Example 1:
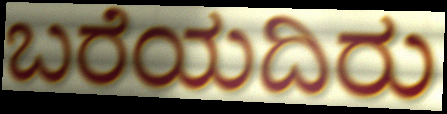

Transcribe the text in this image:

ಬರೆಯದಿರು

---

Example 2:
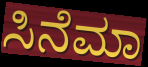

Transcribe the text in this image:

ಸಿನೆಮಾ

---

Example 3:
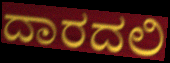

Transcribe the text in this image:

ದಾರದಲಿ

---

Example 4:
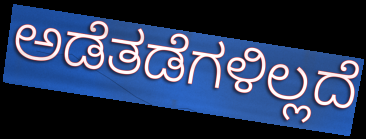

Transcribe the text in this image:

ಅಡೆತಡೆಗಳಿಲ್ಲದೆ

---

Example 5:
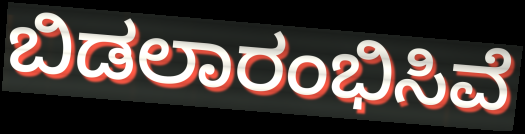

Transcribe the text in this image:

ಬಿಡಲಾರಂಭಿಸಿವೆ